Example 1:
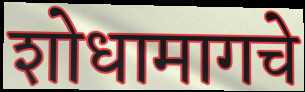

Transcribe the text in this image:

शोधामागचे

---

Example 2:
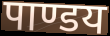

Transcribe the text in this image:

पाण्डय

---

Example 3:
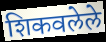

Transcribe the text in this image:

शिकवलेले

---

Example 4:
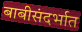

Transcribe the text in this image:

बाबीसंदर्भात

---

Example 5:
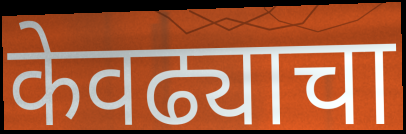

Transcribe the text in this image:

केवढ्याचा